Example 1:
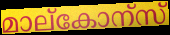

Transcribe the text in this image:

മാല്കോന്സ്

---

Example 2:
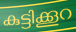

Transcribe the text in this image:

കുട്ടിക്കൂറ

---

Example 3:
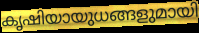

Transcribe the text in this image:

കൃഷിയായുധങ്ങളുമായി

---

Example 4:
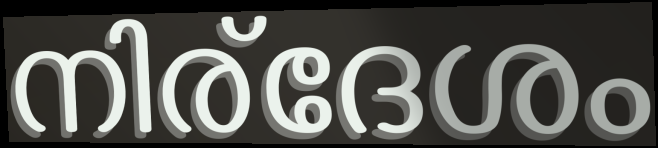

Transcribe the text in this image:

നിര്ദേശം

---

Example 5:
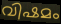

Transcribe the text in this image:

വിഷമം